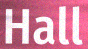
Hall